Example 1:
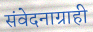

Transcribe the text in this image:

संवेदनाग्राही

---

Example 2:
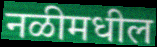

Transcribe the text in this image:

नळीमधील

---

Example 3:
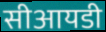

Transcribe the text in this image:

सीआयडी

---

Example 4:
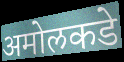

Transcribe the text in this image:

अमोलकडे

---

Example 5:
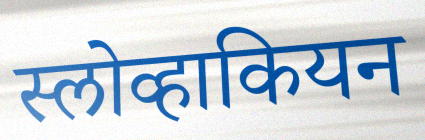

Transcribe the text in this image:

स्लोव्हाकियन